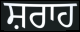
ਸ਼ਰਾਹ